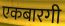
एकबारगी